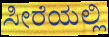
ಸೀರೆಯಲ್ಲಿ